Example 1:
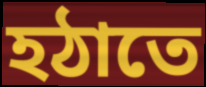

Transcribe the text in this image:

হঠাতে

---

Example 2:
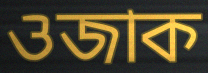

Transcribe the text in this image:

ওজাক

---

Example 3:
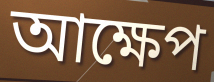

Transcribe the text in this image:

আক্ষেপ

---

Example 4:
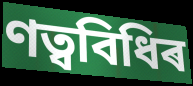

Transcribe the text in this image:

ণত্ববিধিৰ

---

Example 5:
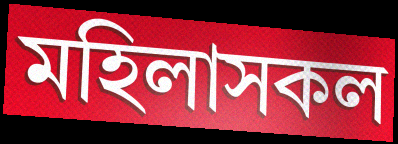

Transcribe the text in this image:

মহিলাসকল